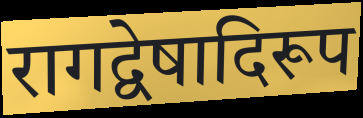
रागद्वेषादिरूप